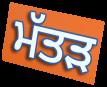
ਮੱਤੜ